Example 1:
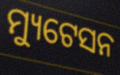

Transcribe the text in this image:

ମ୍ୟୁଟେସନ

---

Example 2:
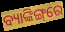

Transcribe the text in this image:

ବ୍ୟାଙ୍କିଙ୍ଗ୍‌ରେ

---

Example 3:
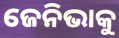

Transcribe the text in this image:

ଜେନିଭାକୁ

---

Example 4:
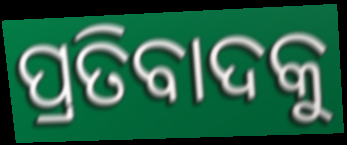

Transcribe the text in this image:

ପ୍ରତିବାଦକୁ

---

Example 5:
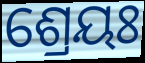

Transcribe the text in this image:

ଶ୍ରେୟଃ